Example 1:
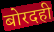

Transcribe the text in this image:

बोरदही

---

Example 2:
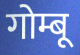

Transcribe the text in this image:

गोम्बू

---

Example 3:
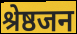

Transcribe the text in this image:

श्रेष्ठजन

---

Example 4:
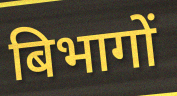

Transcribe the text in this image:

बिभागों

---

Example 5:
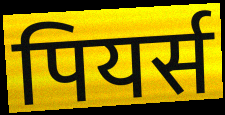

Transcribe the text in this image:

पियर्स